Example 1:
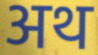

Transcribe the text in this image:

अथ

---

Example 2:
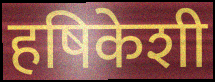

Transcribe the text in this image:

हषिकेशी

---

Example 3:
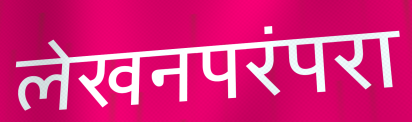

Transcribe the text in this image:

लेखनपरंपरा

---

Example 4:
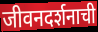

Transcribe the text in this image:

जीवनदर्शनाची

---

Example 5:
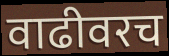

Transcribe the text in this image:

वाढीवरच